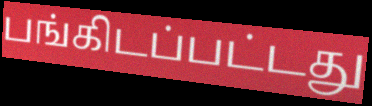
பங்கிடப்பட்டது